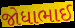
જોધાભાઈ